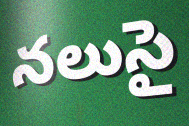
నలుసై